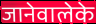
जानेवालेके